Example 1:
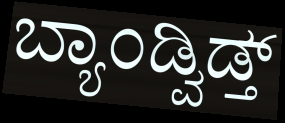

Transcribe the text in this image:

ಬ್ಯಾಂಡ್ವಿಡ್ತ್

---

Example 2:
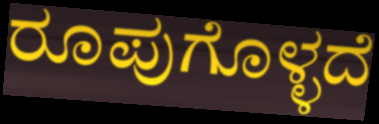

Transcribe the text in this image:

ರೂಪುಗೊಳ್ಳದೆ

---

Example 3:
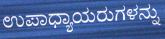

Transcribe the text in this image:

ಉಪಾಧ್ಯಾಯರುಗಳನ್ನು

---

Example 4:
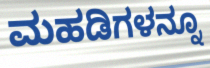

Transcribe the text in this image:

ಮಹಡಿಗಳನ್ನೂ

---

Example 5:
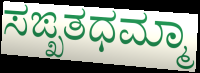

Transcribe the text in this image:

ಸಙ್ಖತಧಮ್ಮಾ